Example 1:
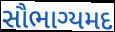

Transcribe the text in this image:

સૌભાગ્યમદ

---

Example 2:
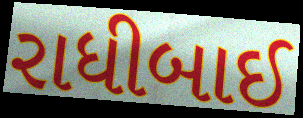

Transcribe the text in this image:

રાધીબાઈ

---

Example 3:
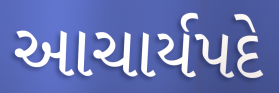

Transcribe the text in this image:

આચાર્યપદે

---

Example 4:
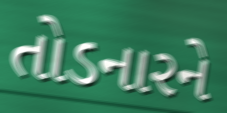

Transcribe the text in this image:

તોડનારને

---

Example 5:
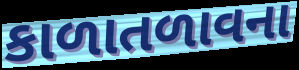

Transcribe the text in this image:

કાળાતળાવના